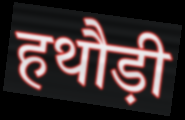
हथौड़ी